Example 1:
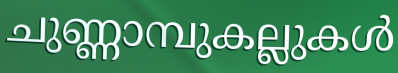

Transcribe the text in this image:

ചുണ്ണാമ്പുകല്ലുകൾ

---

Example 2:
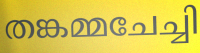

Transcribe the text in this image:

തങ്കമ്മചേച്ചി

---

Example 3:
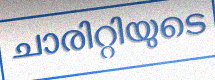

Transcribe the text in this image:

ചാരിറ്റിയുടെ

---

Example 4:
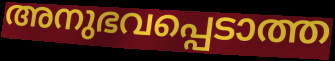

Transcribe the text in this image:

അനുഭവപ്പെടാത്ത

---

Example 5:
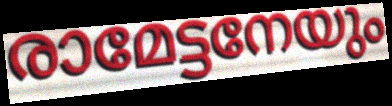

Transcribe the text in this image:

രാമേട്ടനേയും